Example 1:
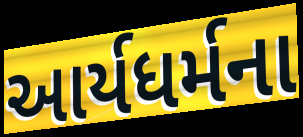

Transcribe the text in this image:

આર્યધર્મના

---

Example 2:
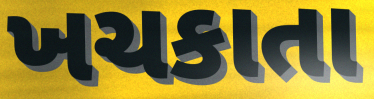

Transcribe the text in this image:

ખચકાતા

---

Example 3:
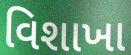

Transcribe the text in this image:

વિશાખા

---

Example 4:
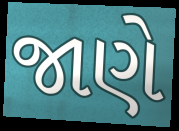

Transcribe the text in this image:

જાણે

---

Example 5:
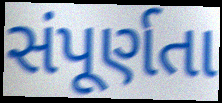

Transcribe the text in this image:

સંપૂર્ણતા